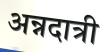
अन्नदात्री